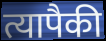
त्यापैकी